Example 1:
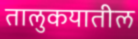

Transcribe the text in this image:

तालुकयातील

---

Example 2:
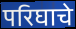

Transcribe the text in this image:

परिघाचे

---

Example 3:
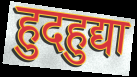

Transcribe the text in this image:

हुदहुद्या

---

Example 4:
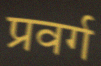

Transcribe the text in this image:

प्रवर्ग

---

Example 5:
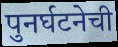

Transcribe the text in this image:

पुनर्घटनेची